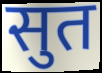
सुत